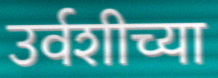
उर्वशीच्या